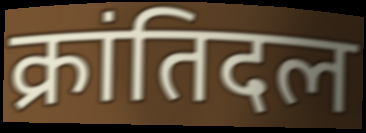
क्रांतिदल